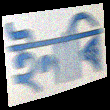
ইনাৰি